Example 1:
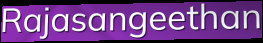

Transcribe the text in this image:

Rajasangeethan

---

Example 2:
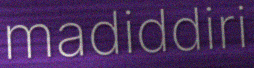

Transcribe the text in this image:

madiddiri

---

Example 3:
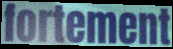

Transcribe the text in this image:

fortement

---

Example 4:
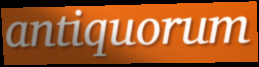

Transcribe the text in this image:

antiquorum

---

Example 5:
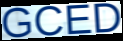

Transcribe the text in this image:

GCED